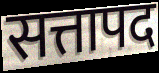
सत्तापद